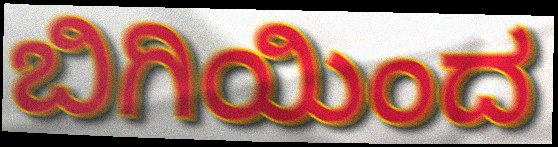
ಬಿಗಿಯಿಂದ